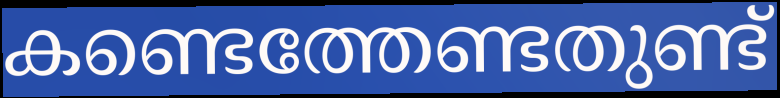
കണ്ടെത്തേണ്ടതുണ്ട്